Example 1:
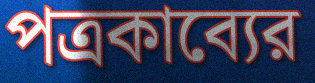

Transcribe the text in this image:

পত্রকাব্যের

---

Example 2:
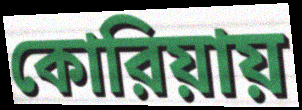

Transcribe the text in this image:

কোরিয়ায়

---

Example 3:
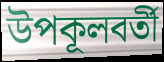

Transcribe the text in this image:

উপকূলবর্তী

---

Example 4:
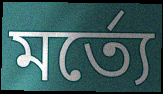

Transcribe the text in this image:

মর্ত্যে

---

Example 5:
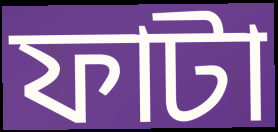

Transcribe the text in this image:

ফাটা